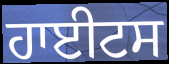
ਹਾਈਟਸ